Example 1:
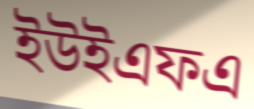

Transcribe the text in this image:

ইউইএফএ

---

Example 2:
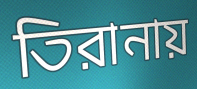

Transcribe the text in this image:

তিরানায়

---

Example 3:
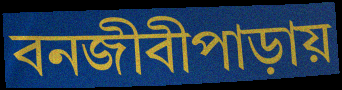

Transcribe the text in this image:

বনজীবীপাড়ায়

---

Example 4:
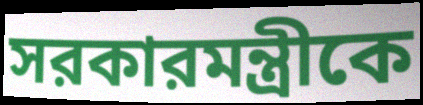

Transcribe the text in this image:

সরকারমন্ত্রীকে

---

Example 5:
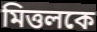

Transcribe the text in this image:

মিত্তলকে